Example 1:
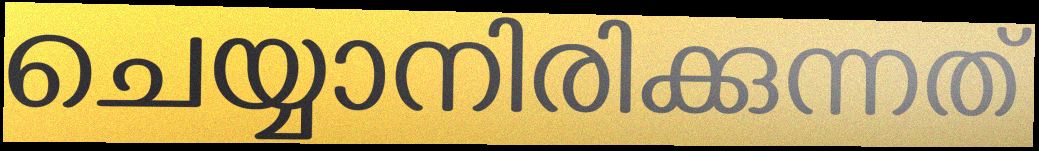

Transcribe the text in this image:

ചെയ്യാനിരിക്കുന്നത്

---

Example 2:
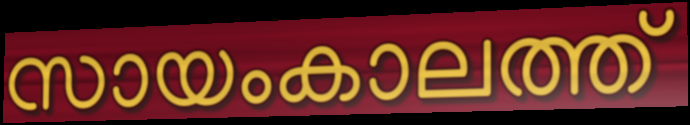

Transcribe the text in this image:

സായംകാലത്ത്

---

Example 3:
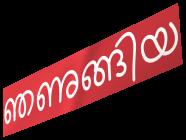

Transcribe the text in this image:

ഞണുങ്ങിയ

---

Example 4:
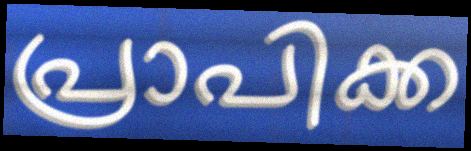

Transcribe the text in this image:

പ്രാപിക്ക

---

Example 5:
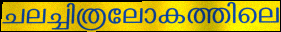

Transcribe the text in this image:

ചലച്ചിത്രലോകത്തിലെ